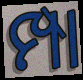
ମ୍ପା